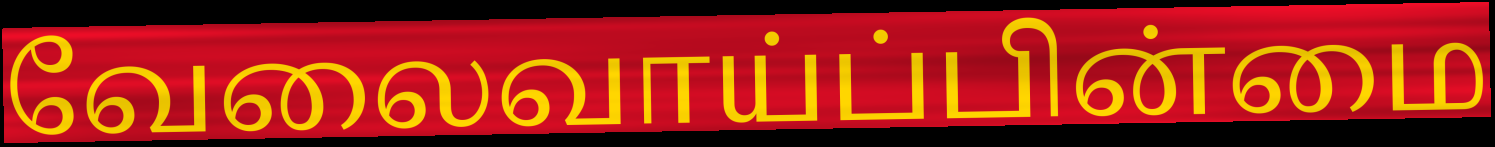
வேலைவாய்ப்பின்மை